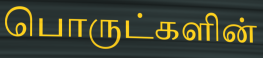
பொருட்களின்